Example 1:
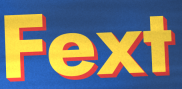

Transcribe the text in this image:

Fext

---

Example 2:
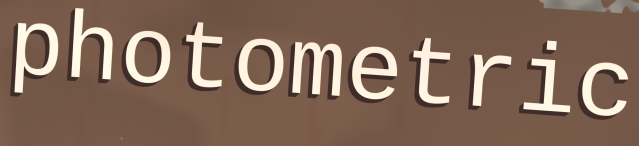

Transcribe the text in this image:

photometric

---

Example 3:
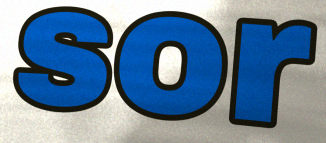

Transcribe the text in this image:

sor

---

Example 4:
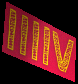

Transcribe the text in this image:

IIIIV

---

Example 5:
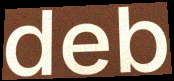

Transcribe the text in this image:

deb